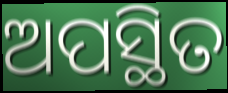
ଅପସ୍ଥିତ